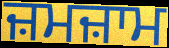
ਜ਼ਮਜ਼ਾਮ